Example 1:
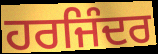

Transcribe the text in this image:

ਹਰਜਿੰਦਰ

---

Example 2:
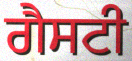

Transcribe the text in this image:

ਗੈਸਟੀ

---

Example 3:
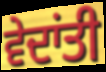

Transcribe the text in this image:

ਵੇਦਾਂਤੀ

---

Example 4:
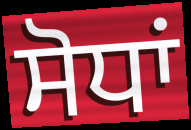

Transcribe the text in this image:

ਸੋਧਾਂ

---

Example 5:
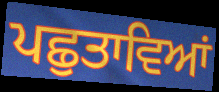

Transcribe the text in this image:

ਪਛੁਤਾਵਿਆਂ